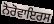
ਨੋਰੋਵਾਇਰਸ